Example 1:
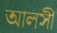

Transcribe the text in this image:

আলসী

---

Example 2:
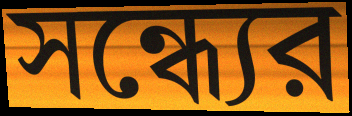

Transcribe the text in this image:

সন্ধ্যের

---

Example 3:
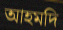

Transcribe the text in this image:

আহমদি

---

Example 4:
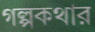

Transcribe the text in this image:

গল্পকথার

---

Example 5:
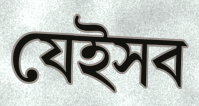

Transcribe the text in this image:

যেইসব